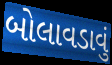
બોલાવડાવું